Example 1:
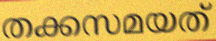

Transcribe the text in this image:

തക്കസമയത്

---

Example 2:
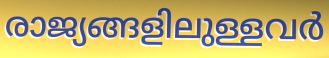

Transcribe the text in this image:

രാജ്യങ്ങളിലുള്ളവർ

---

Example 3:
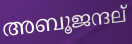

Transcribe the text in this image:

അബൂജന്ദല്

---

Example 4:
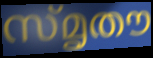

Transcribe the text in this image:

സ്മൃതൗ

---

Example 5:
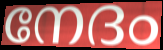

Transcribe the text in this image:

നേദം